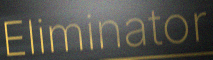
Eliminator